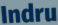
Indru